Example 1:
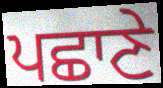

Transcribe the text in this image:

ਪਛਾਣੇ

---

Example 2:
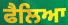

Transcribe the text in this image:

ਫੈਲਿਆ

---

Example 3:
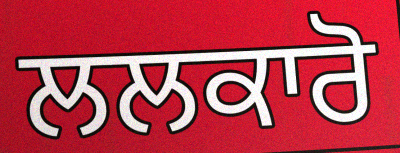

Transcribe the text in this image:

ਲਲਕਾਰੋ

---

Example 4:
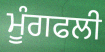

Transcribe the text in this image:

ਮੂੰਗਫਲੀ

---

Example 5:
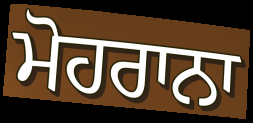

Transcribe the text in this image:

ਮੋਹਰਾਨਾ